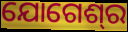
ଯୋଗେଶ୍‍ର